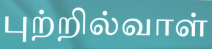
புற்றில்வாள்